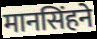
मानसिंहने